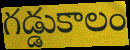
గడ్డుకాలం